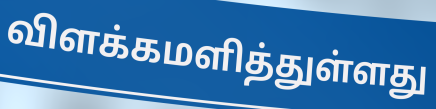
விளக்கமளித்துள்ளது